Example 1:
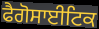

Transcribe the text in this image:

ਫੈਗੋਸਾਈਟਿਕ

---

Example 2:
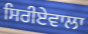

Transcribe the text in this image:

ਸਿਰੀਏਵਾਲਾ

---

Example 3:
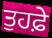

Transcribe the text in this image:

ਤੁਹਫ਼ੇ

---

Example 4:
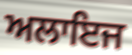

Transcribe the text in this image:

ਅਲਾਇਜ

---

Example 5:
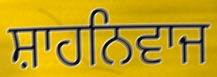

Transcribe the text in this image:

ਸ਼ਾਹਨਿਵਾਜ